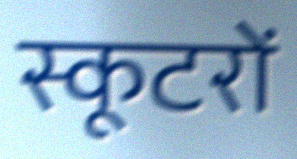
स्कूटरों